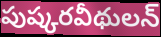
పుష్కరవీథులన్